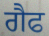
ਗੈਫ